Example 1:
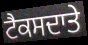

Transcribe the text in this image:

ਟੈਕਸਦਾਤੇ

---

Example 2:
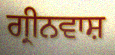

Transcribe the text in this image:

ਗ੍ਰੀਨਵਾਸ਼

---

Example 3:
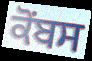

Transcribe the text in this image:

ਕੋਂਬਸ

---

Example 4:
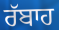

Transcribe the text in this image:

ਰੱਬਾਹ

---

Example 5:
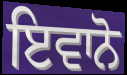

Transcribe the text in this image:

ਇਵਾਨੋ